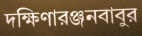
দক্ষিণারঞ্জনবাবুর